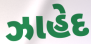
ઝાહેદ